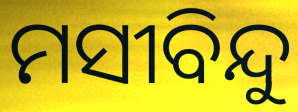
ମସୀବିନ୍ଦୁ